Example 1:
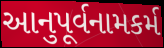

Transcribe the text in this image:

આનુપૂર્વનામકર્મ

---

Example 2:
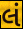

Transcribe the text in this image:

લં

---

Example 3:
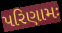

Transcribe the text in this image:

પરિણામઃ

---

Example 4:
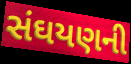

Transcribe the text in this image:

સંઘયણની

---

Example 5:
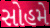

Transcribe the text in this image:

સોહમે